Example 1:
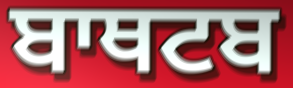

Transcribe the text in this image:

ਬਾਥਟਬ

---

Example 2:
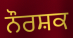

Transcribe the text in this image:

ਨੌਰਸ਼ਕ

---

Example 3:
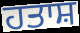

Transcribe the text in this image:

ਹਤਾਸ਼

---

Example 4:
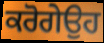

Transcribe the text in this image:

ਕਰੋਗੇਉਹ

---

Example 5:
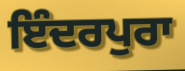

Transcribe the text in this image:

ਇੰਦਰਪੁਰਾ